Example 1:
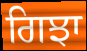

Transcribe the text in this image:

ਗਿਝਾ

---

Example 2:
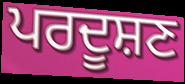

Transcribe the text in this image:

ਪਰਦੂਸ਼ਣ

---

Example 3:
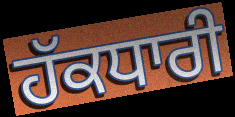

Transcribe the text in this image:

ਹੱਕਧਾਰੀ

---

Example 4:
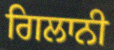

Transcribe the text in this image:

ਗਿਲਾਨੀ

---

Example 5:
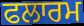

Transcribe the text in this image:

ਫਲਾਰਮ